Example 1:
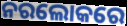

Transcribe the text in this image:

ନରଲୋକରେ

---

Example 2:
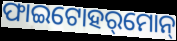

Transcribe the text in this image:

ଫାଇଟୋହର୍‌ମୋନ୍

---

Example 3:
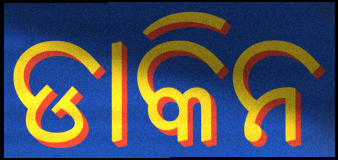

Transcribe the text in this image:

ଡାକିନ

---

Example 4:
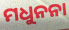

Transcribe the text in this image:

ମଧୁନନା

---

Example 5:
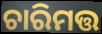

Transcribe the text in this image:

ଚାରିମତ୍ତ